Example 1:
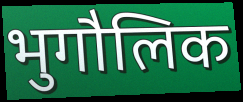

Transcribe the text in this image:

भुगौलिक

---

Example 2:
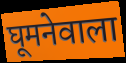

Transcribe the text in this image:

घूमनेवाला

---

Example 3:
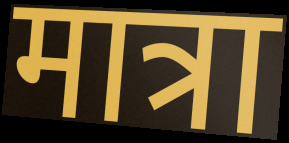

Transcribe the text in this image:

मात्रा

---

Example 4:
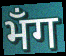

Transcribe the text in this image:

भँग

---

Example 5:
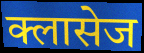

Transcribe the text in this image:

क्लासेज